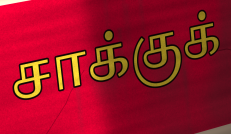
சாக்குக்